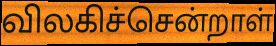
விலகிச்சென்றாள்